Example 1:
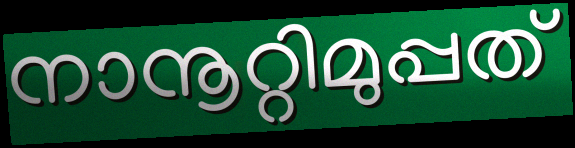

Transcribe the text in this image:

നാനൂറ്റിമുപ്പത്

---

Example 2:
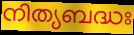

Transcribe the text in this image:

നിത്യബദ്ധഃ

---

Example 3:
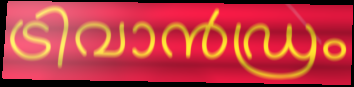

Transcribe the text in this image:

ട്രിവാൻഡ്രം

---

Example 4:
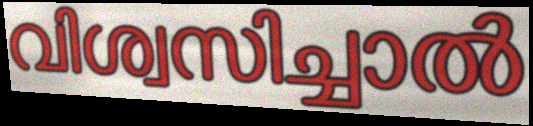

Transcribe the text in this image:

വിശ്വസിച്ചാൽ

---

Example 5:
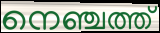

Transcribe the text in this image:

നെഞ്ചത്ത്